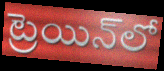
ట్రెయిన్‌లో